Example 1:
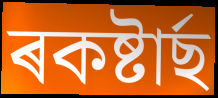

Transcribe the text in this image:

ৰকষ্টাৰ্ছ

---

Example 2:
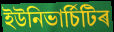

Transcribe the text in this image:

ইউনিভাৰ্চিটিৰ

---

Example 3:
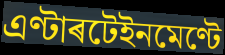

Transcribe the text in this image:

এণ্টাৰটেইনমেণ্টে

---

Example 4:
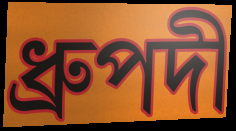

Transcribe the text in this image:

ধ্ৰুপদী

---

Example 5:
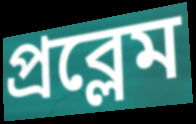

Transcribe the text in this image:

প্ৰব্লেম